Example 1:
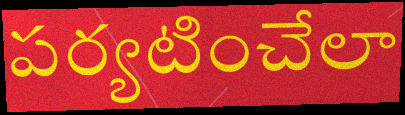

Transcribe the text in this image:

పర్యటించేలా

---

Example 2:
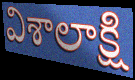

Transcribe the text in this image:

విశాలాక్షి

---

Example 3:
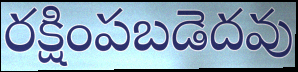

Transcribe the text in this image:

రక్షింపబడెదవు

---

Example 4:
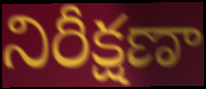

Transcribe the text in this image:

నిరీక్షణా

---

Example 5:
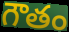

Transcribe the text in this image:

గౌతం